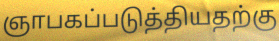
ஞாபகப்படுத்தியதற்கு